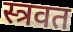
स्त्रवत